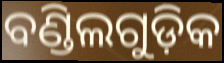
ବଣ୍ଡିଲଗୁଡ଼ିକ